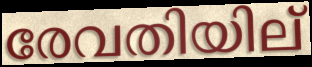
രേവതിയില്